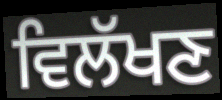
ਵਿਲੱਖਣ